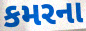
કમરના